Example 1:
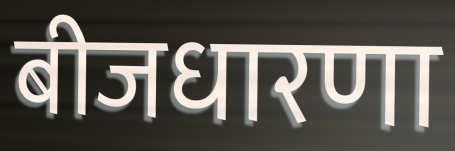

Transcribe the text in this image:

बीजधारणा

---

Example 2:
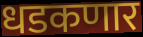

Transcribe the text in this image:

धडकणार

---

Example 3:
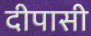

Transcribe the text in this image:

दीपासी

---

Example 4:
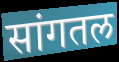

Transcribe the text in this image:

सांगतल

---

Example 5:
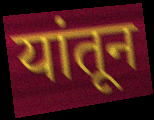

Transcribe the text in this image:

यांतून